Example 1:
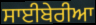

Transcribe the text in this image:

ਸਾਈਬੇਰੀਆ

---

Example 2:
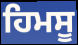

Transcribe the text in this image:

ਹਿਮਸੂ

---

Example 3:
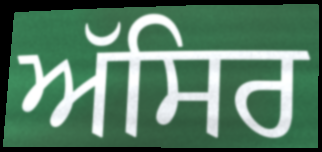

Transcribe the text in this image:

ਅੱਸਿਰ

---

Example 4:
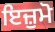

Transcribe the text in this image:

ਇਜ਼ੁਮੋ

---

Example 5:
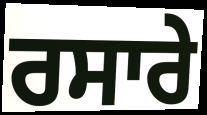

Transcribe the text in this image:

ਰਸਾਰੇ